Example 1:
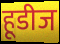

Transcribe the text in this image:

हूडीज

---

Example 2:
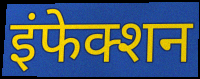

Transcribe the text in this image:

इंफेक्शन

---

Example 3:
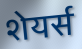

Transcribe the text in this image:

शेयर्स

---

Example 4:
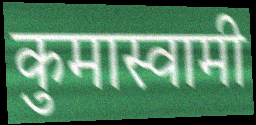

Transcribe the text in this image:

कुमास्वामी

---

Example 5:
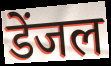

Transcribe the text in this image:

डेंजल